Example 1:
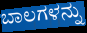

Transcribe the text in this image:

ಬಾಲಗಳನ್ನು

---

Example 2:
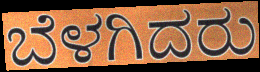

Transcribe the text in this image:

ಬೆಳಗಿದರು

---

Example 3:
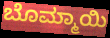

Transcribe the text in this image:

ಬೊಮ್ಮಾಯಿ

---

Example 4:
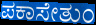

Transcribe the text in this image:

ಪಕಾಸೇತುಂ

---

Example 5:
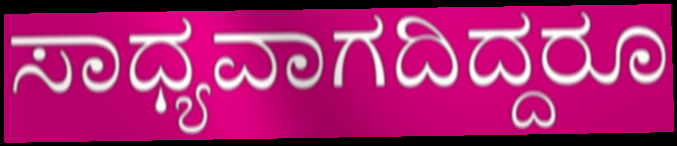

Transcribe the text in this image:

ಸಾಧ್ಯವಾಗದಿದ್ದರೂ